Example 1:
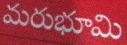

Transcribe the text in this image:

మరుభూమి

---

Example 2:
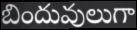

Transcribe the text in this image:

బిందువులుగా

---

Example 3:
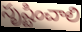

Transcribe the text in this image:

సృష్టించాలి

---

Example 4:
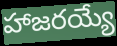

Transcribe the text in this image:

హాజరయ్యే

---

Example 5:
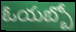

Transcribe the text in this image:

ఓయబ్బో